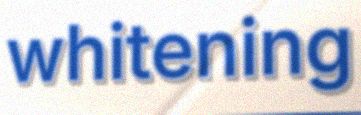
whitening